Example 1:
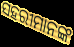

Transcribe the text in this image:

ସହରୀମାନଙ୍କ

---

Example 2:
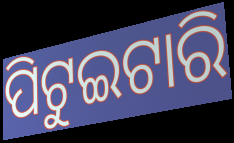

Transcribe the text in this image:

ପିଟୁଇଟାରି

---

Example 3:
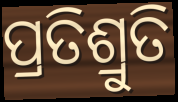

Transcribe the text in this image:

ପ୍ରତିଶ୍ରୁତି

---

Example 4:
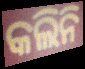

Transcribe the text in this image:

କଲିନି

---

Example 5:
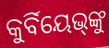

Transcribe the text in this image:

କୁର୍ବିୟେଭ୍‌ଙ୍କୁ